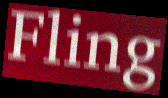
Fling